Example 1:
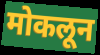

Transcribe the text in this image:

मोकलून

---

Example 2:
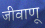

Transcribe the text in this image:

जीवाणू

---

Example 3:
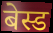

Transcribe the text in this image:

बेस्ड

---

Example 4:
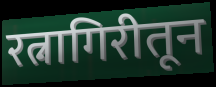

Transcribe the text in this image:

रत्नागिरीतून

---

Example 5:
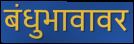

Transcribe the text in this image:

बंधुभावावर